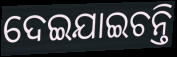
ଦେଇଯାଇଚନ୍ତି